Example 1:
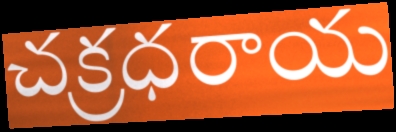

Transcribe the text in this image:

చక్రధరాయ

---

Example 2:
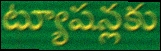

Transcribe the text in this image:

ట్యూషన్లకు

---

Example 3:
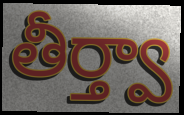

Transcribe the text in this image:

తీర్త్వా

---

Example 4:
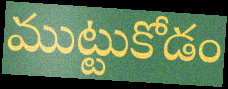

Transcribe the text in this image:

ముట్టుకోడం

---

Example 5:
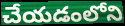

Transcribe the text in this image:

చేయడంలోని